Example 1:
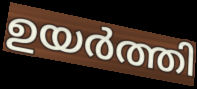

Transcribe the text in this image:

ഉയർത്തി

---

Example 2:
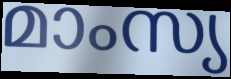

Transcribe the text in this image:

മാംസ്യ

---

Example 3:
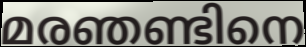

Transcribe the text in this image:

മരഞണ്ടിനെ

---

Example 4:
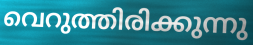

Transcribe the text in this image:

വെറുത്തിരിക്കുന്നു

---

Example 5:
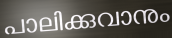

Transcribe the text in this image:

പാലിക്കുവാനും